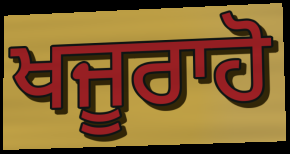
ਖਜੂਰਾਹੋ